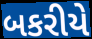
બકરીયે